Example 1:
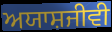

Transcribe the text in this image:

ਅਯਾਸ਼ਜੀਵੀ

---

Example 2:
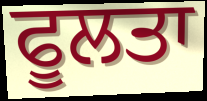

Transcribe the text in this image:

ਫੂਲਤਾ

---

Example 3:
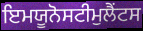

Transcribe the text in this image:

ਇਮਯੂਨੋਸਟੀਮੁਲੈਂਟਸ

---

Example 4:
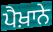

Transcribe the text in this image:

ਪੈਖ਼ਾਨੇ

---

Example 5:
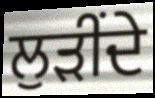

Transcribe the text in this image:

ਲੁੜੀਂਦੇ